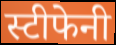
स्टीफेनी